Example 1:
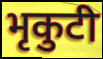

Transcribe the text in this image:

भृकुटी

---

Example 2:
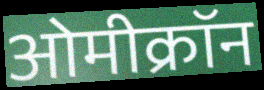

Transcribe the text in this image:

ओमीक्रॉन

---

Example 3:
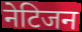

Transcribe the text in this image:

नेटिजन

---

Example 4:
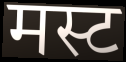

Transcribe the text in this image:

मस्ट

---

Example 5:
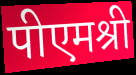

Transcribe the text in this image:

पीएमश्री